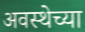
अवस्थेच्या